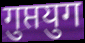
गुप्तयुग